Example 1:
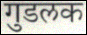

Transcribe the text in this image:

गुडलक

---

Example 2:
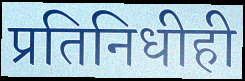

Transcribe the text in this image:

प्रतिनिधीही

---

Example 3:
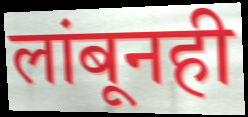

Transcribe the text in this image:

लांबूनही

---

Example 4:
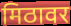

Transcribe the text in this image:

मिठावर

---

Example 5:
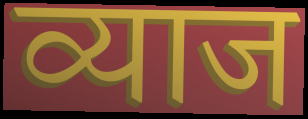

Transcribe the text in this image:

व्याज